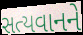
સત્યવાનને